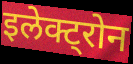
इलेक्ट्रोन